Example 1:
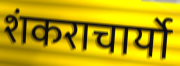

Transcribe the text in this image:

शंकराचार्यो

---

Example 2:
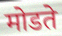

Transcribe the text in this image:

मोडते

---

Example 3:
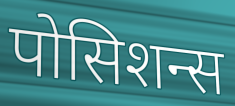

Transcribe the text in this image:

पोसिशन्स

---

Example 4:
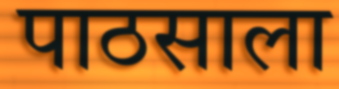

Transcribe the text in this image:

पाठसाला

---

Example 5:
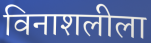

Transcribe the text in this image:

विनाशलीला